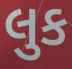
લુક